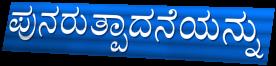
ಪುನರುತ್ಪಾದನೆಯನ್ನು